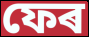
ফেৰ